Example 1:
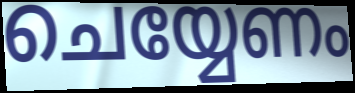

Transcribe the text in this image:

ചെയ്യേണം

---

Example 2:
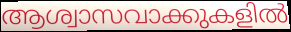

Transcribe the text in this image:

ആശ്വാസവാക്കുകളിൽ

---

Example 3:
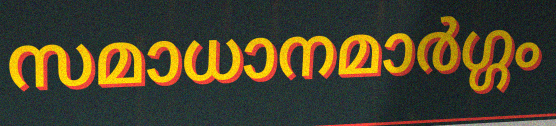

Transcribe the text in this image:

സമാധാനമാർഗ്ഗം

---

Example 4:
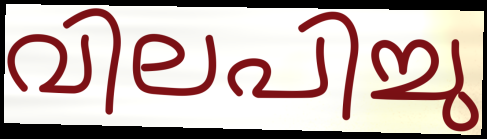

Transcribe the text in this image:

വിലപിച്ചു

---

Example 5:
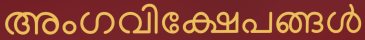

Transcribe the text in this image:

അംഗവിക്ഷേപങ്ങൾ